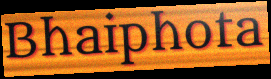
Bhaiphota